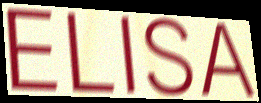
ELISA